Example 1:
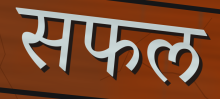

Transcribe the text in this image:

सफल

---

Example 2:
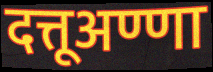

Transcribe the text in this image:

दत्तूअण्णा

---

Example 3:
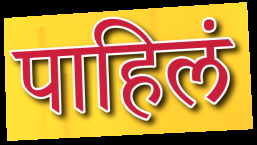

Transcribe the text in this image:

पाहिलं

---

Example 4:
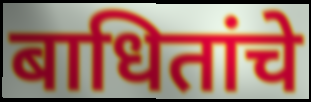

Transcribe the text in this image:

बाधितांचे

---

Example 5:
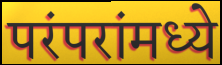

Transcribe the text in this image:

परंपरांमध्ये